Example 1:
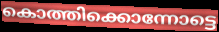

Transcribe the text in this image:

കൊത്തിക്കൊന്നോട്ടെ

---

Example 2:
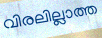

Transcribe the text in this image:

വിരലില്ലാത്ത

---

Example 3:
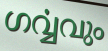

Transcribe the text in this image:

ഗൎവ്വവും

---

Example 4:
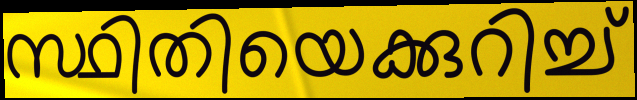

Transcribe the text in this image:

സ്ഥിതിയെക്കുറിച്ച്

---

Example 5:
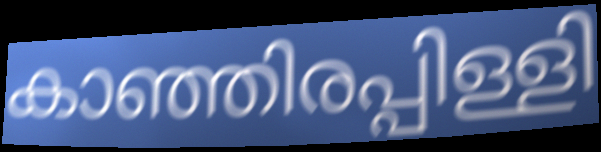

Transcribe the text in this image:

കാഞ്ഞിരപ്പിള്ളി